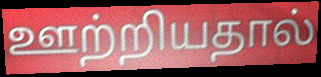
ஊற்றியதால்